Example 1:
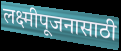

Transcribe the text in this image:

लक्ष्मीपूजनासाठी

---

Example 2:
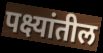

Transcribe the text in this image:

पक्ष्यांतील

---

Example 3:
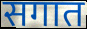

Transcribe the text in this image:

सगात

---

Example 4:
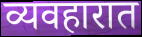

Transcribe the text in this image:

व्यवहारात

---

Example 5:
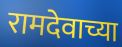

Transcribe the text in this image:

रामदेवाच्या